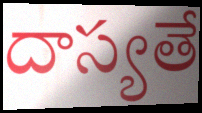
దాస్యతే